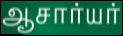
ஆசார்யர்